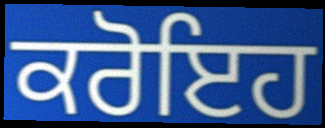
ਕਰੋਇਹ